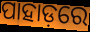
ପାହାଡ଼ରେ